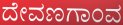
ದೇವಣಗಾಂವ